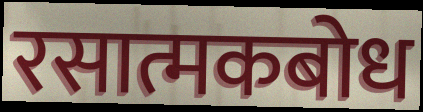
रसात्मकबोध